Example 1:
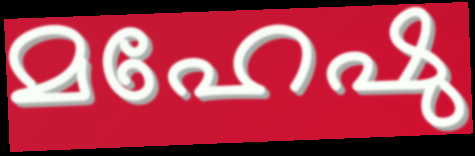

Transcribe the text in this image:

മഹേഷു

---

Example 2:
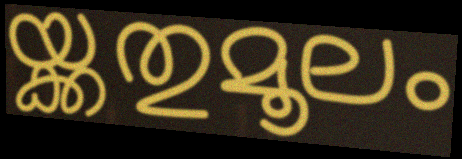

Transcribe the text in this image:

യ്ക്കതുമൂലം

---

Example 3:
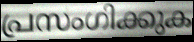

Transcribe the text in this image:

പ്രസംഗിക്കുക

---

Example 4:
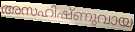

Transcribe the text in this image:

അസഹിഷ്ണുവായ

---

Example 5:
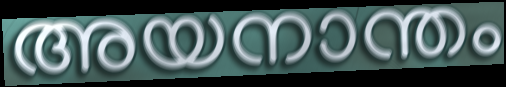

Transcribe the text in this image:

അയനാന്തം